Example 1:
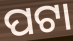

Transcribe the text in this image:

ପଟା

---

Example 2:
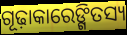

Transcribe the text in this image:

ଗୂଢ଼ାକାରେଙ୍ଗିତସ୍ୟ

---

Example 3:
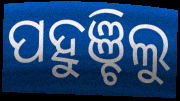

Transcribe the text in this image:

ପହୁଞ୍ଚିଲୁ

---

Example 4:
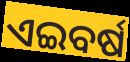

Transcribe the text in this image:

ଏଇବର୍ଷ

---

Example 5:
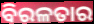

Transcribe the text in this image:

ବିରଳତାର